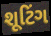
શૂટિંગ